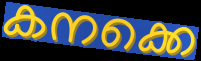
കനക്കെ